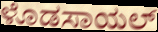
ಳೊಡಸಾಯಲ್